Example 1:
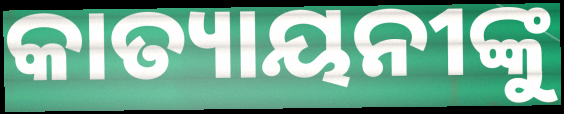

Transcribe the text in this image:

କାତ୍ୟାୟନୀଙ୍କୁ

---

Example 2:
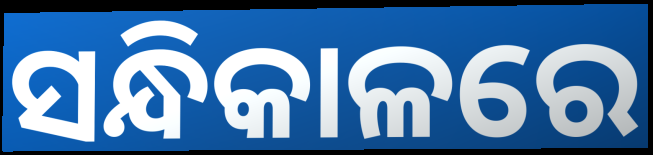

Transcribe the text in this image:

ସନ୍ଧିକାଳରେ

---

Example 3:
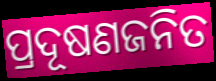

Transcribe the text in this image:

ପ୍ରଦୂଷଣଜନିତ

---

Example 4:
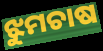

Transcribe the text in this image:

ଝୁମଚାଷ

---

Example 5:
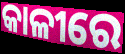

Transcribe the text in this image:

କାଳୀରେ